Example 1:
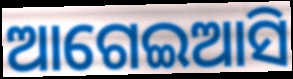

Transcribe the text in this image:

ଆଗେଇଆସି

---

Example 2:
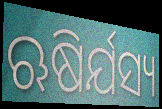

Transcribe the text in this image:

ଋଷିର୍ଯସ୍ୟ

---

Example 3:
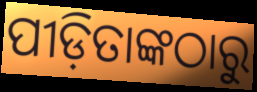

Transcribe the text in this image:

ପୀଡ଼ିତାଙ୍କଠାରୁ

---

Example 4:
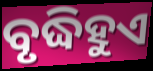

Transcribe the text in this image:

ବୃଦ୍ଧିହୁଏ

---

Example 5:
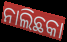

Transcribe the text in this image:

ନାଲିଛକା